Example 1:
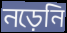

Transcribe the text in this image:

নড়েনি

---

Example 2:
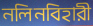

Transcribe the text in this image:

নলিনবিহারী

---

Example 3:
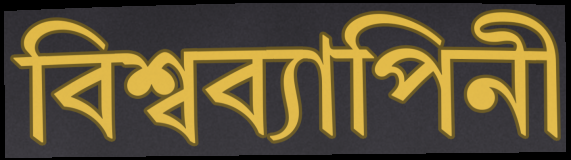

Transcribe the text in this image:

বিশ্বব্যাপিনী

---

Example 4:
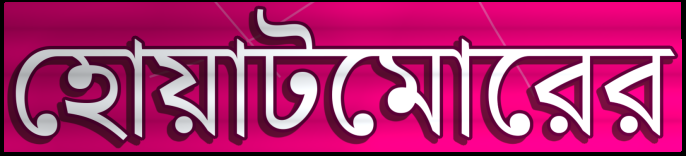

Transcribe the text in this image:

হোয়াটমোরের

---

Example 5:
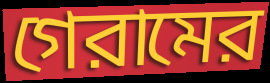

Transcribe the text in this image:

গেরামের